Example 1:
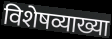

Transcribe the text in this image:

विशेषव्याख्या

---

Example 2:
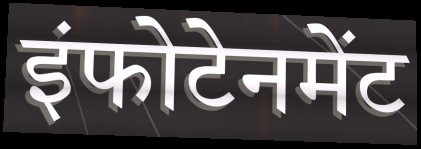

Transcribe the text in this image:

इंफोटेनमेंट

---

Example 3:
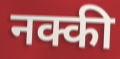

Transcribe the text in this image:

नक्की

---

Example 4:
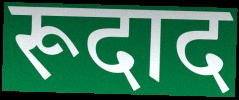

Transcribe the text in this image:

रूदाद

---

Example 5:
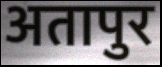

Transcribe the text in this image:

अतापुर